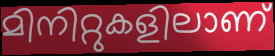
മിനിറ്റുകളിലാണ്